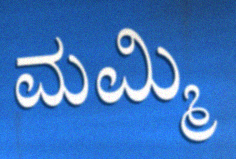
ಮಮ್ಮಿ